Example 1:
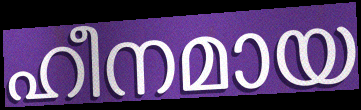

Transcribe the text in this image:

ഹീനമായ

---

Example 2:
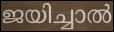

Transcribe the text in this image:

ജയിച്ചാൽ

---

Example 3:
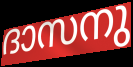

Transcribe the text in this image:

ദാസനു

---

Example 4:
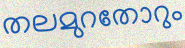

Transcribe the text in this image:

തലമുറതോറും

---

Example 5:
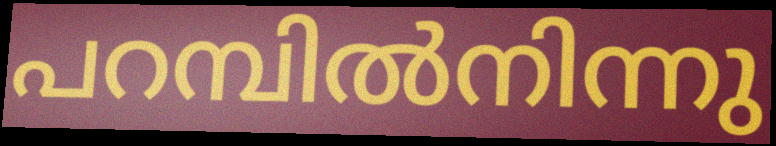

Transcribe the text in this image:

പറമ്പിൽനിന്നു